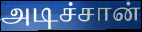
அடிச்சான்